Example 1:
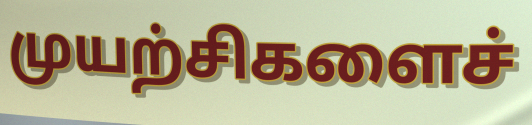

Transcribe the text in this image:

முயற்சிகளைச்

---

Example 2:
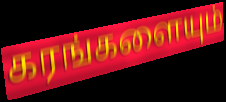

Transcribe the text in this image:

கரங்களையும்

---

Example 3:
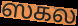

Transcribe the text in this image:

ஸகல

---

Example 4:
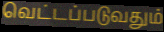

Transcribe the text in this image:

வெட்டப்படுவதும்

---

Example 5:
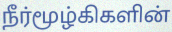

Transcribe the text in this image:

நீர்மூழ்கிகளின்